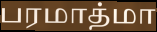
பரமாத்மா